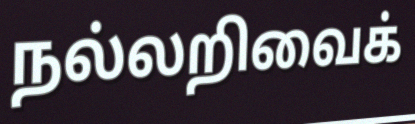
நல்லறிவைக்